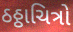
ઠઠ્ઠાચિત્રો